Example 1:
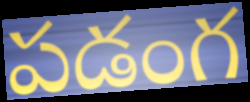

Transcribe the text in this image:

పడంగ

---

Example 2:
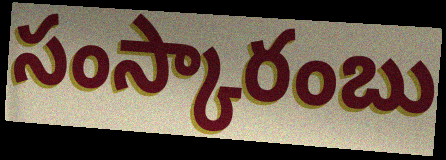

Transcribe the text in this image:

సంస్కారంబు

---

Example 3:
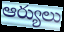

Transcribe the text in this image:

ఆర్యులు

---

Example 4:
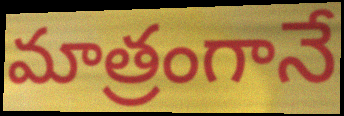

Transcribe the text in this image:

మాత్రంగానే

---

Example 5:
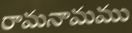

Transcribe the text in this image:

రామనామము